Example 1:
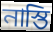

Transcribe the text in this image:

নাস্তি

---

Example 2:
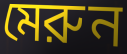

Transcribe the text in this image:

মেৰুন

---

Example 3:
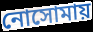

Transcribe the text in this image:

নোসোমায়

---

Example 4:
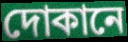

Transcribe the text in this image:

দোকানে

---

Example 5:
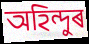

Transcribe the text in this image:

অহিন্দুৰ